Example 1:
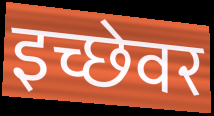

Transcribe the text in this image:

इच्छेवर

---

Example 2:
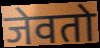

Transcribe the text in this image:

जेवतो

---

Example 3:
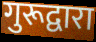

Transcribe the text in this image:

गुरूद्वारा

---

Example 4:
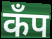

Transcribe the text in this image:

कॅंप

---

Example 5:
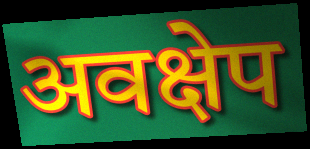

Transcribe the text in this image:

अवक्षेप